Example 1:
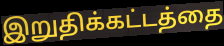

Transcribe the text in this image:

இறுதிக்கட்டத்தை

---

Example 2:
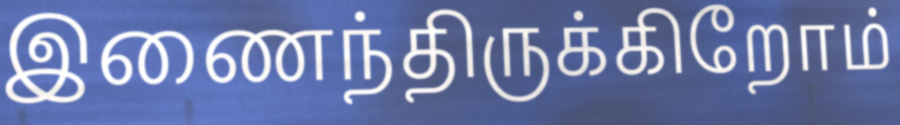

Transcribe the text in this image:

இணைந்திருக்கிறோம்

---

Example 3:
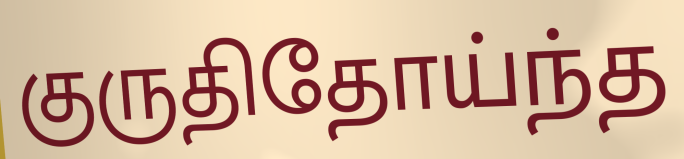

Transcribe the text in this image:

குருதிதோய்ந்த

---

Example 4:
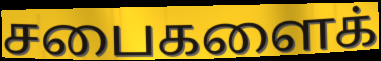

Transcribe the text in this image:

சபைகளைக்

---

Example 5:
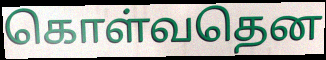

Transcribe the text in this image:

கொள்வதென